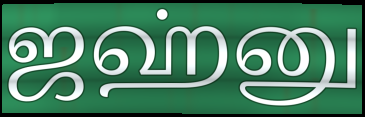
ஜஹ்னு